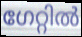
ഗേറ്റിൽ